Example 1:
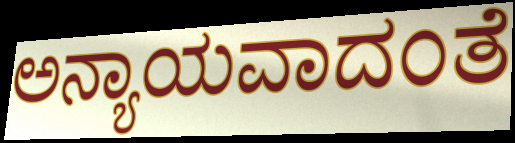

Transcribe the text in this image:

ಅನ್ಯಾಯವಾದಂತೆ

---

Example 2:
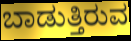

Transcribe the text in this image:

ಬಾಡುತ್ತಿರುವ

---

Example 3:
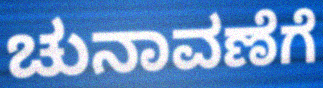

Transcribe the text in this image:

ಚುನಾವಣೆಗೆ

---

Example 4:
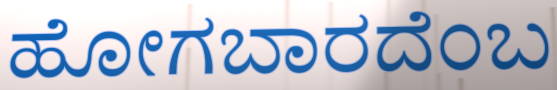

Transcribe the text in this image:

ಹೋಗಬಾರದೆಂಬ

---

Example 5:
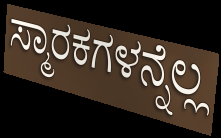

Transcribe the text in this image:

ಸ್ಮಾರಕಗಳನ್ನೆಲ್ಲ